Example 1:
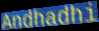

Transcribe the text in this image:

Andhadhi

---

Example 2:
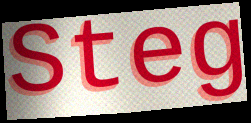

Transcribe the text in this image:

Steg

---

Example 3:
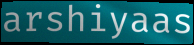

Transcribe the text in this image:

arshiyaas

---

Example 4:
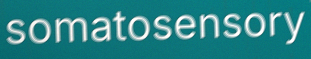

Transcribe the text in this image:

somatosensory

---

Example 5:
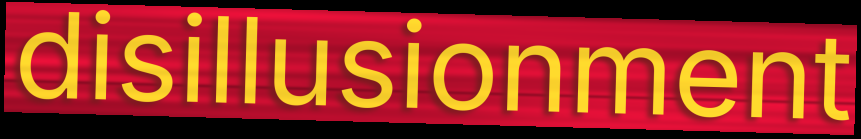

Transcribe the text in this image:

disillusionment